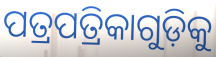
ପତ୍ରପତ୍ରିକାଗୁଡ଼ିକୁ